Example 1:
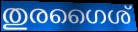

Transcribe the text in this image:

തുരഗൈശ്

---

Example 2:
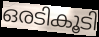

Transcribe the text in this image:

ഒരടികൂടി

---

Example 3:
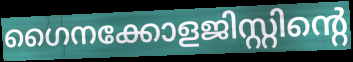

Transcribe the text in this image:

ഗൈനക്കോളജിസ്റ്റിന്റെ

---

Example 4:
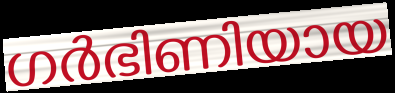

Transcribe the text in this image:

ഗർഭിണിയായ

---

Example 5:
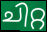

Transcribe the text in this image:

ചിറ്റ